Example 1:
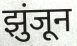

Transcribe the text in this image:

झुंजून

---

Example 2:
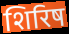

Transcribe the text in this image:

शिरिष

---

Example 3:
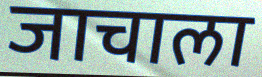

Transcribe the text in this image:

जाचाला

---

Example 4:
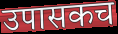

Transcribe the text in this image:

उपासकच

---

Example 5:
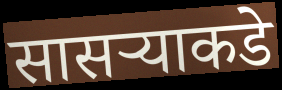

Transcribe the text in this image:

सासऱ्याकडे